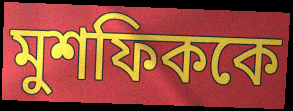
মুশফিককে